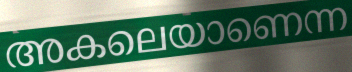
അകലെയാണെന്ന